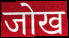
जोख